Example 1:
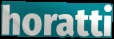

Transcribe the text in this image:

horatti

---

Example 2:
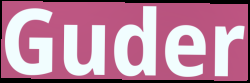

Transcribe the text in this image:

Guder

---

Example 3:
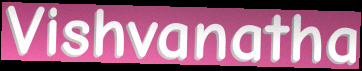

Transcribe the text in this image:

Vishvanatha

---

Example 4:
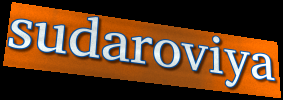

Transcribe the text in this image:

sudaroviya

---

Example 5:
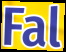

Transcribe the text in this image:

Fal